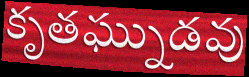
కృతఘ్నుడవు